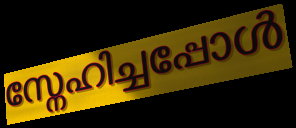
സ്നേഹിച്ചപ്പോൾ